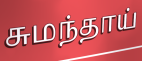
சுமந்தாய்